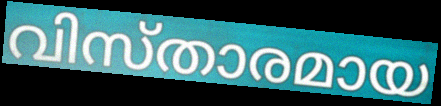
വിസ്താരമായ